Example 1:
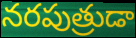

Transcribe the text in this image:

నరపుత్రుడా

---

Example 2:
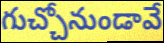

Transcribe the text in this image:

గుచ్చోనుండావే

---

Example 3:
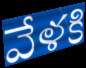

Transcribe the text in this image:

వేళకి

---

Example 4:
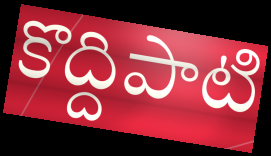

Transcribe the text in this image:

కొద్దిపాటి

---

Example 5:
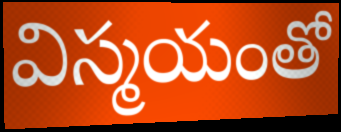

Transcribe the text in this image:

విస్మయంతో